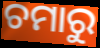
ଚମାରୁ